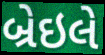
બ્રેઇલે